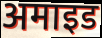
अमाइड